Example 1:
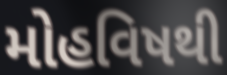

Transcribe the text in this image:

મોહવિષથી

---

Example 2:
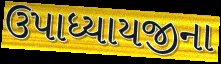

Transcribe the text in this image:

ઉપાધ્યાયજીના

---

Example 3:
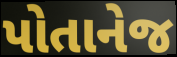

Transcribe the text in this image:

પોતાનેજ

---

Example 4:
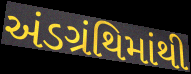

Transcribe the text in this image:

અંડગ્રંથિમાંથી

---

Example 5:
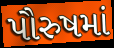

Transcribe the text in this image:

પૌરુષમાં